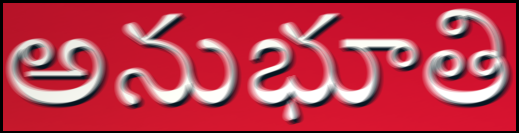
అనుభూతి